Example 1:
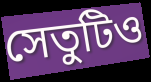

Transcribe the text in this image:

সেতুটিও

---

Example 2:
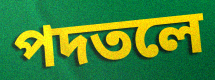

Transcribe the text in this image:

পদতলে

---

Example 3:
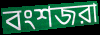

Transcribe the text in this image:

বংশজরা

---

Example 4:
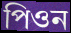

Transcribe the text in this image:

পিওন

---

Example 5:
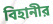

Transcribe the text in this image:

বিহানীর